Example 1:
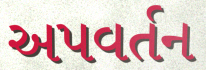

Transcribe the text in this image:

અપવર્તન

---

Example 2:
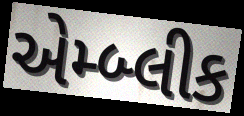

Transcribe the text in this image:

એમ્બ્લીક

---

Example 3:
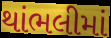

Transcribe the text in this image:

થાંભલીમાં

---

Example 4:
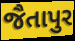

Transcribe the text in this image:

જૈતાપુર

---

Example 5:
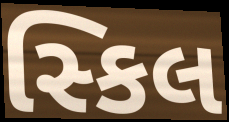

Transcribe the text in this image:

સ્કિલ